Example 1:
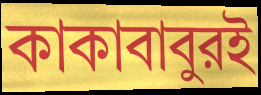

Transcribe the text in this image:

কাকাবাবুরই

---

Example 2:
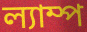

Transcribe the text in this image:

ল্যাম্প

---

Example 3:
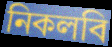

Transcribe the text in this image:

নিকলবি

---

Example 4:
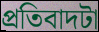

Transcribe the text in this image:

প্রতিবাদটা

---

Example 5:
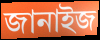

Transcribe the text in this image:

জানাইজ